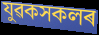
যুৱকসকলৰ